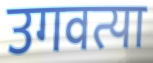
उगवत्या